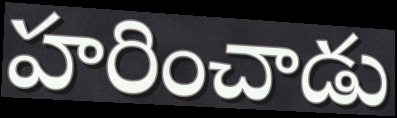
హరించాడు